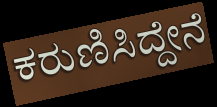
ಕರುಣಿಸಿದ್ದೇನೆ